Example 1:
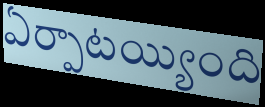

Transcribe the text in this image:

ఏర్పాటయ్యింది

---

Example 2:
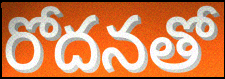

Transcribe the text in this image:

రోదనతో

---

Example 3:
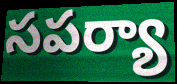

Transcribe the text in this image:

సపర్యా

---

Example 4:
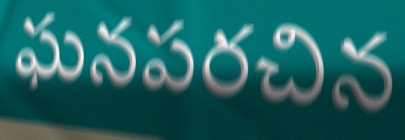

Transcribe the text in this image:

ఘనపరచిన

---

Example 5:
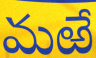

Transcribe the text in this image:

మఱే